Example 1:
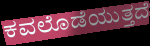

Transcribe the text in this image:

ಕವಲೊಡೆಯುತ್ತದೆ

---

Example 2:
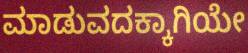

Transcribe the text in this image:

ಮಾಡುವದಕ್ಕಾಗಿಯೇ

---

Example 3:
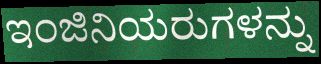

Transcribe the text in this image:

ಇಂಜಿನಿಯರುಗಳನ್ನು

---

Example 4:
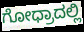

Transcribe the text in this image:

ಗೋಧ್ರಾದಲ್ಲಿ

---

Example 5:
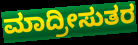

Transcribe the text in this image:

ಮಾದ್ರೀಸುತರ